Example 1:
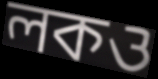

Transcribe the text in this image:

লকও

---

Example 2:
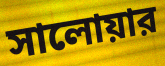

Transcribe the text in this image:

সালোয়ার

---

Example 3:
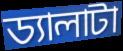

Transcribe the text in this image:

ড্যালাটা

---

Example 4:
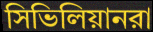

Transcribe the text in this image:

সিভিলিয়ানরা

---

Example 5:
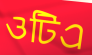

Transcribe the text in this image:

ওটিএ